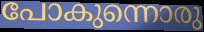
പോകുന്നൊരു